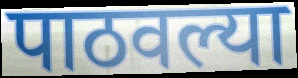
पाठवल्या